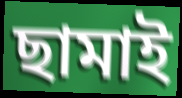
ছামাই